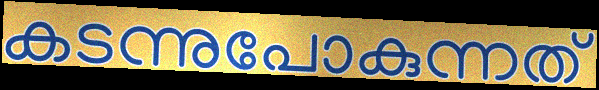
കടന്നുപോകുന്നത്